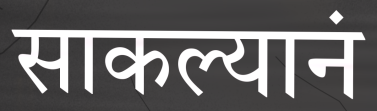
साकल्यानं